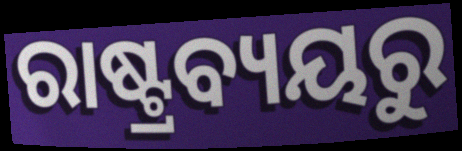
ରାଷ୍ଟ୍ରବ୍ୟୟରୁ